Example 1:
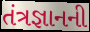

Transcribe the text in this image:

તંત્રજ્ઞાનની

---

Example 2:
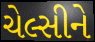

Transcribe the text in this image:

ચેલ્સીને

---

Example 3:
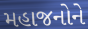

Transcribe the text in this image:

મહાજનોને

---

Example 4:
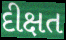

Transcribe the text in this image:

દીક્ષત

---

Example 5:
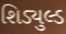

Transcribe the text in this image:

શિડ્યુલ્ડ